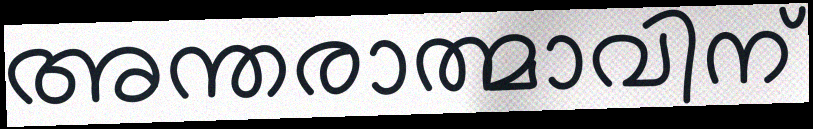
അന്തരാത്മാവിന്